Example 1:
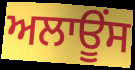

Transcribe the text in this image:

ਅਲਾਊੰਸ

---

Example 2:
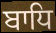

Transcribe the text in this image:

ਬਾਧਿ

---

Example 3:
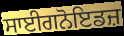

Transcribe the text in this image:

ਸਾਈਗਨੋਇਡਜ਼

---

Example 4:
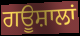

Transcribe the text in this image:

ਗਊਸ਼ਾਲਾਂ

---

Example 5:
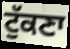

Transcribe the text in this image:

ਟੁੱਕਣਾ